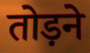
तोड़ने